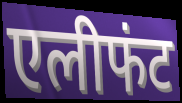
एलीफंट